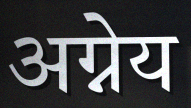
अग्नेय